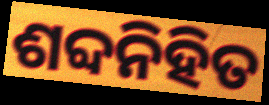
ଶବ୍ଦନିହିତ